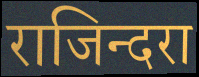
राजिन्दरा